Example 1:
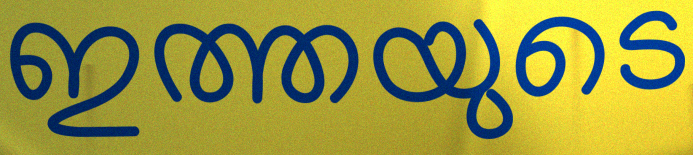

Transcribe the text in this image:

ഇത്തയുടെ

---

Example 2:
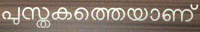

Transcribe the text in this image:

പുസ്തകത്തെയാണ്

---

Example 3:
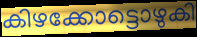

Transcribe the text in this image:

കിഴക്കോട്ടൊഴുകി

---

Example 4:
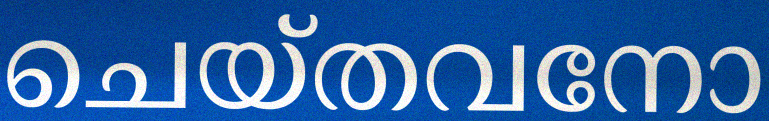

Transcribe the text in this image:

ചെയ്തവനോ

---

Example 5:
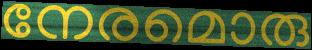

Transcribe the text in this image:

നേരമൊരു